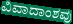
ವಿವಾದಾಂಶವು